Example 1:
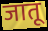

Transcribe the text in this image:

जातू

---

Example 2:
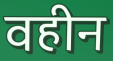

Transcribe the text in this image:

वहीन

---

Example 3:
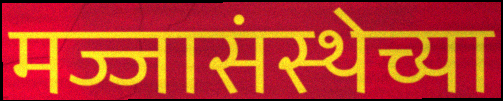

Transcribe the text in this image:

मज्जासंस्थेच्या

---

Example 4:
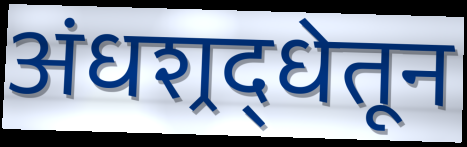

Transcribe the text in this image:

अंधश्रद्धेतून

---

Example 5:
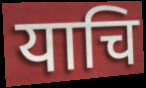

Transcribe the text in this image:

याचि